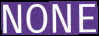
NONE